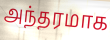
அந்தரமாக